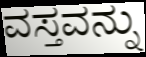
ವಸ್ತವನ್ನು